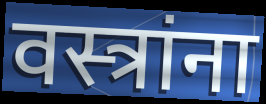
वस्त्रांना